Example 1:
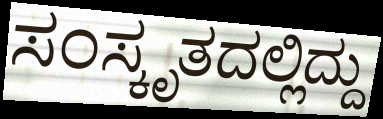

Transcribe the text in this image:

ಸಂಸ್ಕೃತದಲ್ಲಿದ್ದು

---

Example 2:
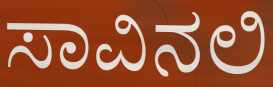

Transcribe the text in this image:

ಸಾವಿನಲಿ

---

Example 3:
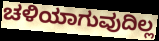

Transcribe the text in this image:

ಚಳಿಯಾಗುವುದಿಲ್ಲ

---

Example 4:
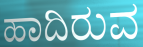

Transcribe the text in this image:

ಹಾದಿರುವ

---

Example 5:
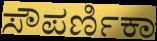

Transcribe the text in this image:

ಸೌಪರ್ಣಿಕಾ